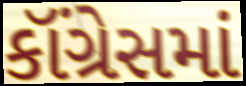
કૉંગ્રેસમાં